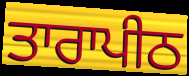
ਤਾਰਾਪੀਠ